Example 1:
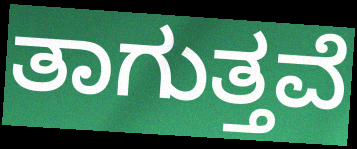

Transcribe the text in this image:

ತಾಗುತ್ತವೆ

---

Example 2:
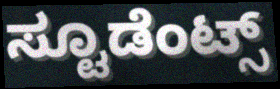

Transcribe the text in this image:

ಸ್ಟೂಡೆಂಟ್ಸ್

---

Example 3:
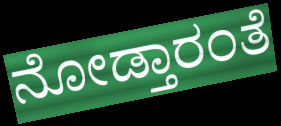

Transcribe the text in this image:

ನೋಡ್ತಾರಂತೆ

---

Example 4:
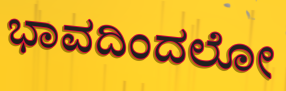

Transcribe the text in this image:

ಭಾವದಿಂದಲೋ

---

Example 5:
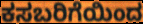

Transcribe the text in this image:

ಕಸಬರಿಗೆಯಿಂದ